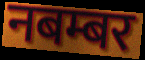
नबम्बर